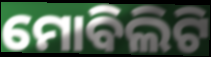
ମୋବିଲିଟି